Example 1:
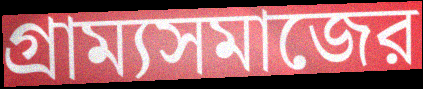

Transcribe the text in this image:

গ্রাম্যসমাজের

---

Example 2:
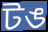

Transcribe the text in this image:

টঙ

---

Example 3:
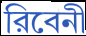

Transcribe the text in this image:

রিবেনী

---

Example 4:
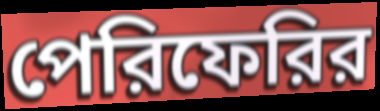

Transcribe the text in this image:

পেরিফেরির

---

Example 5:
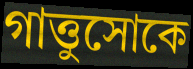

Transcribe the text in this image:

গাত্তুসোকে